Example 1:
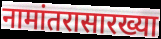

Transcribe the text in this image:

नामांतरासारख्या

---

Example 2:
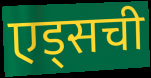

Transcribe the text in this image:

एड्सची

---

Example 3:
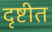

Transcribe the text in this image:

दृष्टीत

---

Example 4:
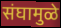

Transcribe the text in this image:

संघामुळे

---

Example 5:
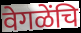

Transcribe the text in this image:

वेगळेंचि